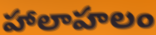
హాలాహలం